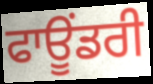
ਫਾਊਂਡਰੀ